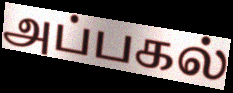
அப்பகல்